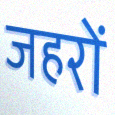
जहरों